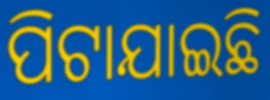
ପିଟାଯାଇଛି